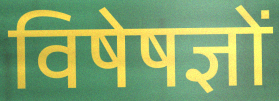
विषेषज्ञों